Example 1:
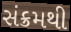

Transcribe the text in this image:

સંક્રમથી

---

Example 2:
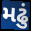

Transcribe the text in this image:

મઢું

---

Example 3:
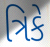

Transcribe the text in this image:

ત્રિકે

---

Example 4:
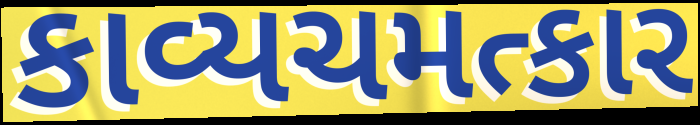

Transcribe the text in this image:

કાવ્યચમત્કાર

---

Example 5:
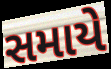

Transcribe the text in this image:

સમાયે